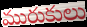
మురుకులు